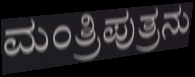
ಮಂತ್ರಿಪುತ್ರನು